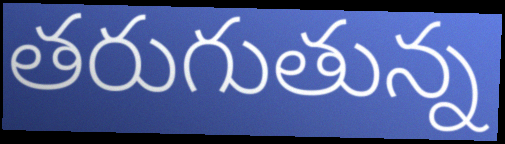
తరుగుతున్న